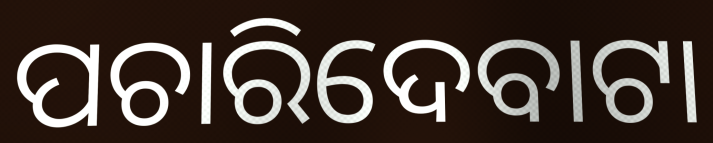
ପଚାରିଦେବାଟା